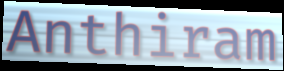
Anthiram